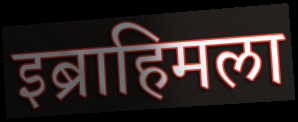
इब्राहिमला